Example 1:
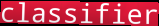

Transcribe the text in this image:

classifier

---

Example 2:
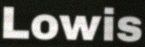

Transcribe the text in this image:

Lowis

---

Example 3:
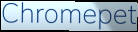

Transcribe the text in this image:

Chromepet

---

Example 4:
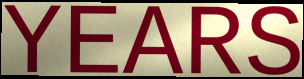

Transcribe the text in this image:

YEARS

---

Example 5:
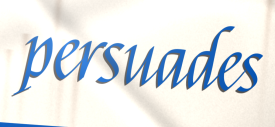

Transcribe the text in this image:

persuades